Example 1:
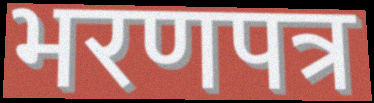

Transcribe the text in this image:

भरणपत्र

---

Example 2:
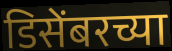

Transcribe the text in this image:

डिसेंबरच्या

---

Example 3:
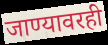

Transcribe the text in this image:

जाण्यावरही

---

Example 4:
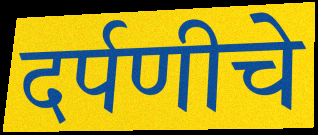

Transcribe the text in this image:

दर्पणीचे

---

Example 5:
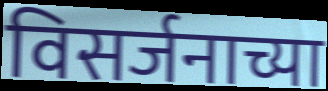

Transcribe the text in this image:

विसर्जनाच्या